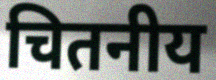
चितनीय